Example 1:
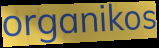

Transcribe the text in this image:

organikos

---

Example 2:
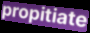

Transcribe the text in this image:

propitiate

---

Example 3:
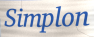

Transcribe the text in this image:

Simplon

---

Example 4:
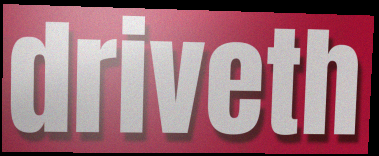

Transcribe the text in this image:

driveth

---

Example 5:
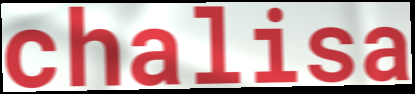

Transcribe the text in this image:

chalisa